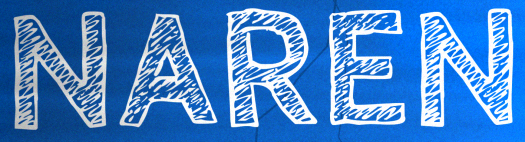
NAREN